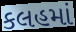
કલહમાં